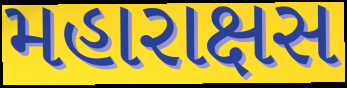
મહારાક્ષસ